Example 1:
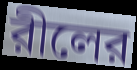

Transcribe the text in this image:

রীলের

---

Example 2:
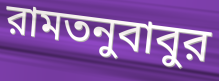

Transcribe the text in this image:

রামতনুবাবুর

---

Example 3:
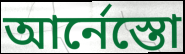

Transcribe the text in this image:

আর্নেস্তো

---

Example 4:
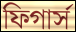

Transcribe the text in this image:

ফিগার্স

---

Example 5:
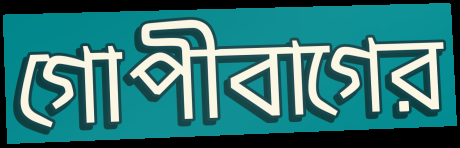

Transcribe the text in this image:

গোপীবাগের